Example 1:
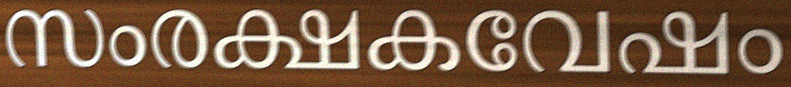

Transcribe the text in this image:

സംരക്ഷകവേഷം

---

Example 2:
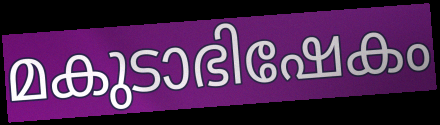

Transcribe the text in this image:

മകുടാഭിഷേകം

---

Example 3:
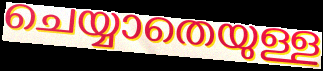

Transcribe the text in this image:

ചെയ്യാതെയുള്ള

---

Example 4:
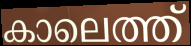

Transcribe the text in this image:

കാലെത്ത്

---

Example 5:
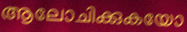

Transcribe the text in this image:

ആലോചിക്കുകയോ